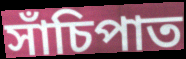
সাঁচিপাত